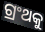
ଗ୍ରଂଥକୁ